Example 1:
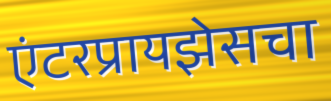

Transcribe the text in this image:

एंटरप्रायझेसचा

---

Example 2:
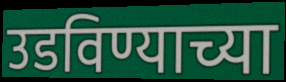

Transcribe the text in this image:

उडविण्याच्या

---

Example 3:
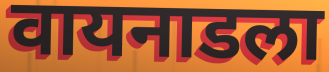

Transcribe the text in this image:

वायनाडला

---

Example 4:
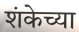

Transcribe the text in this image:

शंकेच्या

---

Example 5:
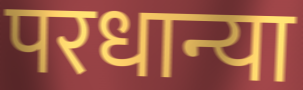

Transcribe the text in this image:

परधान्या